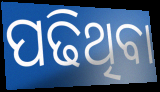
ପଢିଥିବା